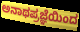
ಅನಾಥಪ್ರಜ್ಞೆಯಿಂದ